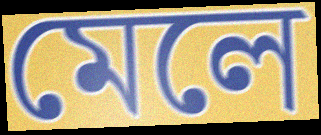
মেলে